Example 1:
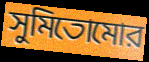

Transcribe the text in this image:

সুমিতোমোর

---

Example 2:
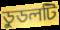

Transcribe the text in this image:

ডুডলটি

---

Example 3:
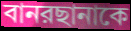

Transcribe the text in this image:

বানরছানাকে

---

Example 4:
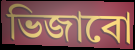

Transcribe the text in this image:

ভিজাবো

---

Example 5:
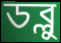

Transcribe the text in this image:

ডব্লু